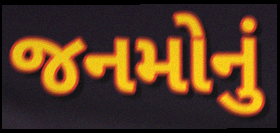
જનમોનું